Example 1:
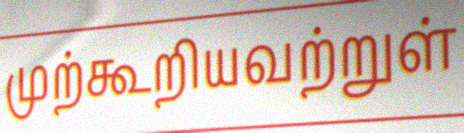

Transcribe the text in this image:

முற்கூறியவற்றுள்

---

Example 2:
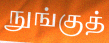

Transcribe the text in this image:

நுங்குத்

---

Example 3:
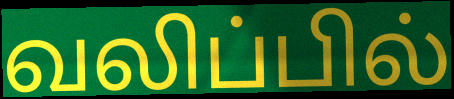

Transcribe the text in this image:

வலிப்பில்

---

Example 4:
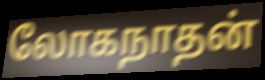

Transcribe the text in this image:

லோகநாதன்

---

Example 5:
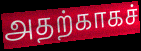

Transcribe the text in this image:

அதற்காகச்